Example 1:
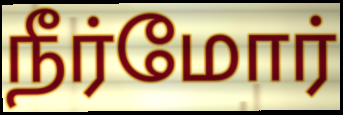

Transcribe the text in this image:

நீர்மோர்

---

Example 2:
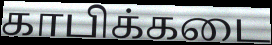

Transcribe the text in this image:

காபிக்கடை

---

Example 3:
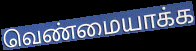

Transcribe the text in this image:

வெண்மையாக்க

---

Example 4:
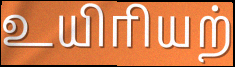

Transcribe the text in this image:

உயிரியற்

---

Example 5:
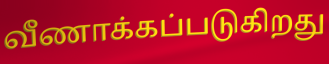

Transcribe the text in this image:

வீணாக்கப்படுகிறது